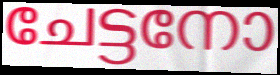
ചേട്ടനോ